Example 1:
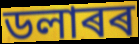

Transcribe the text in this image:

ডলাৰৰ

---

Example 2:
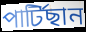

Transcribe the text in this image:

পাৰ্টিছান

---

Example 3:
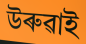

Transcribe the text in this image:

উৰুৱাই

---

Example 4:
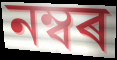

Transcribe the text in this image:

নম্বৰ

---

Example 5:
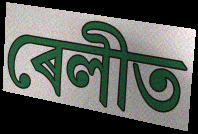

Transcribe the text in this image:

ৰেলীত